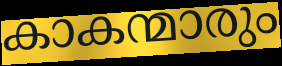
കാകന്മാരും